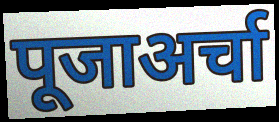
पूजाअर्चा